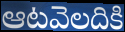
ఆటవెలదికి